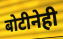
बोटीनेही